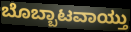
ಬೊಬ್ಬಾಟವಾಯ್ತು